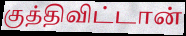
குத்திவிட்டான்